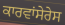
ਕਾਰਵਾਂਸੇਰੇਸ